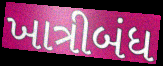
ખાત્રીબંધ